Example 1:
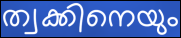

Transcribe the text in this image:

ത്വക്കിനെയും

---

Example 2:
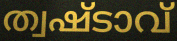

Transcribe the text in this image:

ത്വഷ്ടാവ്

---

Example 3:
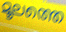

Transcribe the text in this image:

മൂലത്തെ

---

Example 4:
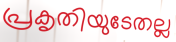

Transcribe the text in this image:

പ്രകൃതിയുടേതല്ല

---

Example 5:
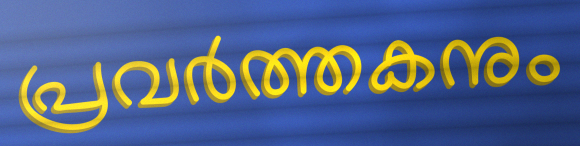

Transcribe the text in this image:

പ്രവർത്തകനും